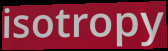
isotropy